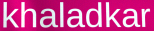
khaladkar